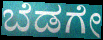
ಬೆಡಗೇ